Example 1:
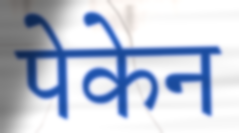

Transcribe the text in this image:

पेकेन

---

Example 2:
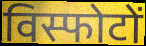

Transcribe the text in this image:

विस्फोटों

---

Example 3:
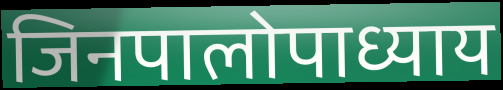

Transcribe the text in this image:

जिनपालोपाध्याय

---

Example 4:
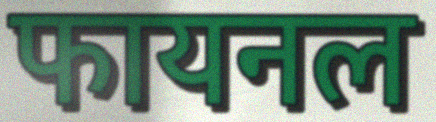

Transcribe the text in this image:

फायनल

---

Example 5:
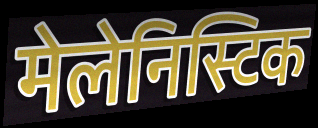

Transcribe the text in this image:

मेलेनिस्टिक